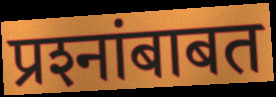
प्रश्‍नांबाबत